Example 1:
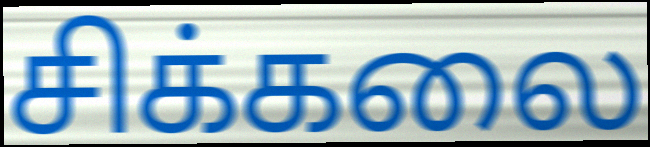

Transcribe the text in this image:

சிக்கலை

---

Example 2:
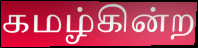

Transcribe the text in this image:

கமழ்கின்ற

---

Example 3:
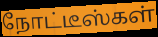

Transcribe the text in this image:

நோட்டீஸ்கள்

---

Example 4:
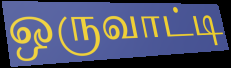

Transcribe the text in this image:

ஒருவாட்டி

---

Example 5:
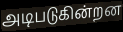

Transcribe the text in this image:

அடிபடுகின்றன